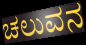
ಚಲುವನ